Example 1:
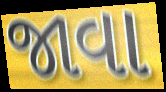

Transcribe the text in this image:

જાવા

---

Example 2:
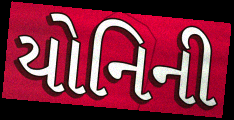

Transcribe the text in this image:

યોનિની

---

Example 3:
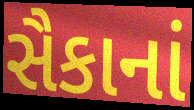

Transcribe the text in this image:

સૈકાનાં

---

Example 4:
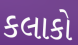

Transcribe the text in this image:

કલાકો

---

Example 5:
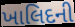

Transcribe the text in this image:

ખાલિદની